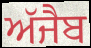
ਅੱਜੈਬ